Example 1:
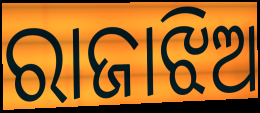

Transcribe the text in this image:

ରାଜାଝିଅ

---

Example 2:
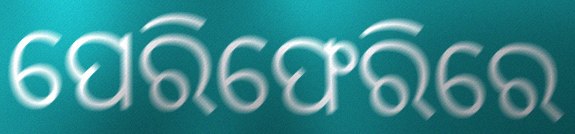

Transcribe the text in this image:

ପେରିଫେରିରେ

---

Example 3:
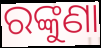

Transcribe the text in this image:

ରଙ୍କୁଣା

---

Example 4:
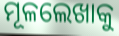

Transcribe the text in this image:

ମୂଳଲେଖାକୁ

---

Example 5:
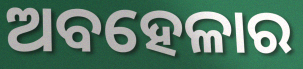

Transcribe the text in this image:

ଅବହେଳାର